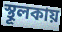
স্থূলকায়